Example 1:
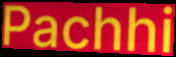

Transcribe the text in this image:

Pachhi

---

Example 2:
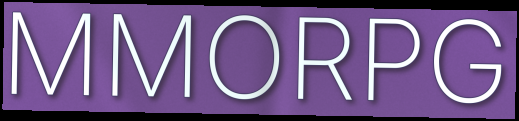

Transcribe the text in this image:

MMORPG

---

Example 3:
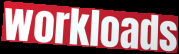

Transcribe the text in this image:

workloads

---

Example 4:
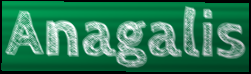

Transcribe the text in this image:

Anagalis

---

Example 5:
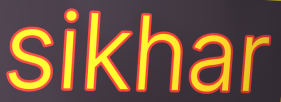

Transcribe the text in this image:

sikhar